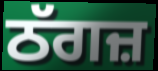
ਠੱਗਜ਼